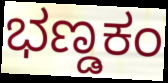
ಭಣ್ಡಕಂ